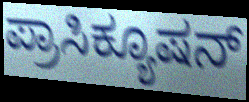
ಪ್ರಾಸಿಕ್ಯೂಷನ್